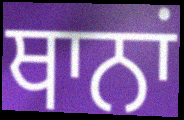
ਥਾਨਾਂ